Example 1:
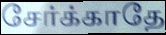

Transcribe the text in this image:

சேர்க்காதே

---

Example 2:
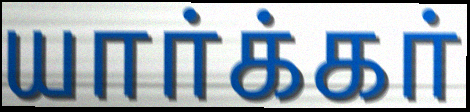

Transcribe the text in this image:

யார்க்கர்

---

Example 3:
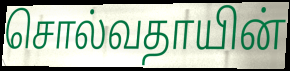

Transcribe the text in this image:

சொல்வதாயின்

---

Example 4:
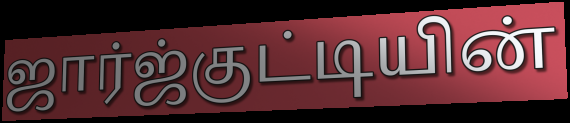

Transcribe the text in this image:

ஜார்ஜ்குட்டியின்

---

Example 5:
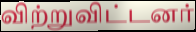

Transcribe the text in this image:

விற்றுவிட்டனர்